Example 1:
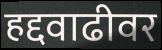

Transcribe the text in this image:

हद्दवाढीवर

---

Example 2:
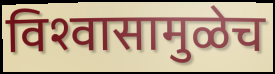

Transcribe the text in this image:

विश्वासामुळेच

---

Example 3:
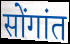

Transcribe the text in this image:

सोंगांत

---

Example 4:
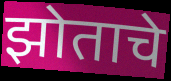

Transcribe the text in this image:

झोताचे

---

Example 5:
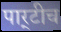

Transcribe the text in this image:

पार्टीच